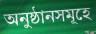
অনুষ্ঠানসমূহে